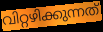
വിറ്റഴിക്കുന്നത്